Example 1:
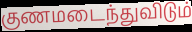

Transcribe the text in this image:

குணமடைந்துவிடும்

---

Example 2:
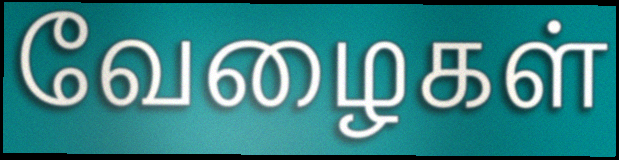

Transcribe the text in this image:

வேழைகள்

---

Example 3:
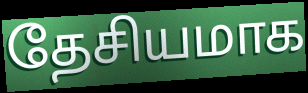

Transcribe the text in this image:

தேசியமாக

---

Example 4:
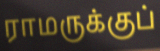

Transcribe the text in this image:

ராமருக்குப்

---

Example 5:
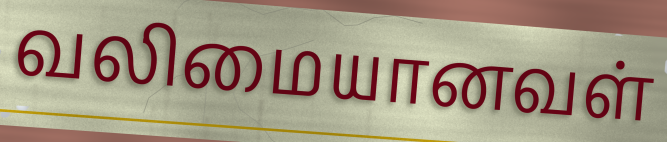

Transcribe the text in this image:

வலிமையானவள்